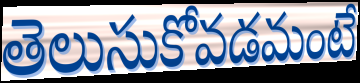
తెలుసుకోవడమంటే